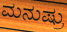
ಮನುಷ್ರು